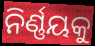
ନିର୍ଣ୍ଣୟକୁ